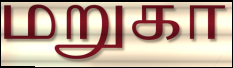
மறுகா